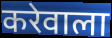
करेवाला